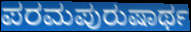
ಪರಮಪುರುಷಾರ್ಥ